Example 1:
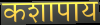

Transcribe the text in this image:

कशापाय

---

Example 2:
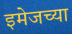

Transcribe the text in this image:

इमेजच्या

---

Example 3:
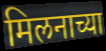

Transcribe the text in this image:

मिलनाच्या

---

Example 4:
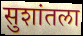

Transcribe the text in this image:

सुशांतला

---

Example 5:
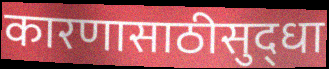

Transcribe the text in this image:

कारणासाठीसुद्धा